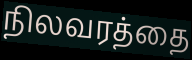
நிலவரத்தை